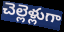
చెల్లెళ్లుగా